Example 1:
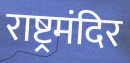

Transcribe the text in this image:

राष्ट्रमंदिर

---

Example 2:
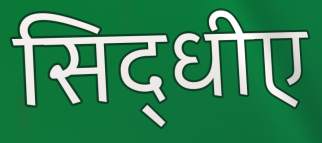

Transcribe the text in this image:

सिद्धीए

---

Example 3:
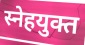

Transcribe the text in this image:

स्नेहयुक्त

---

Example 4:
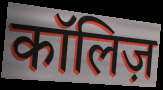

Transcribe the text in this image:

कॉलिज़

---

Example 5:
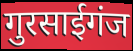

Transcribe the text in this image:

गुरसाईगंज